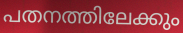
പതനത്തിലേക്കും